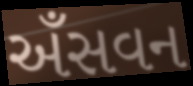
અઁસવન